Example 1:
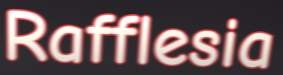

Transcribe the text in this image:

Rafflesia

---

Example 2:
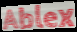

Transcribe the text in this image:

Ablex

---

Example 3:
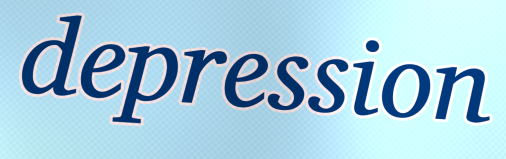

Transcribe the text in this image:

depression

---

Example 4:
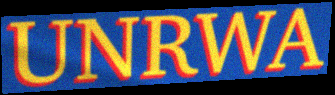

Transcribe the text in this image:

UNRWA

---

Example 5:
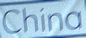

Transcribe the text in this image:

China